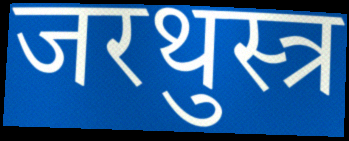
जरथुस्‍त्र